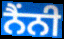
ਨੈਂਨੀ